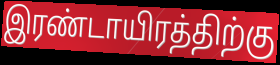
இரண்டாயிரத்திற்கு